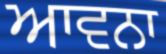
ਆਵਨਾ